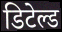
डिटेल्ड